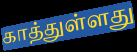
காத்துள்ளது